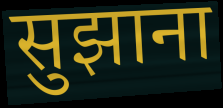
सुझाना